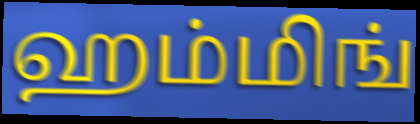
ஹம்மிங்